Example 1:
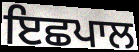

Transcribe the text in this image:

ਇਛਪਾਲ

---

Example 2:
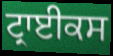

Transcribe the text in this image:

ਟ੍ਰਾਈਕਸ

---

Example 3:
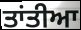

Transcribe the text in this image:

ਤਾਂਤੀਆ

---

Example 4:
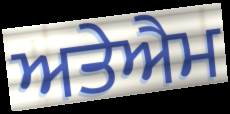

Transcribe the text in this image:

ਅਤੇਐਮ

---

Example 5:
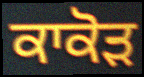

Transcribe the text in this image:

ਕਾਕੋੜ